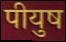
पीयुष